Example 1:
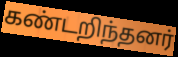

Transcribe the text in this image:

கண்டறிந்தனர்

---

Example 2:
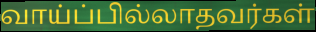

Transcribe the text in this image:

வாய்ப்பில்லாதவர்கள்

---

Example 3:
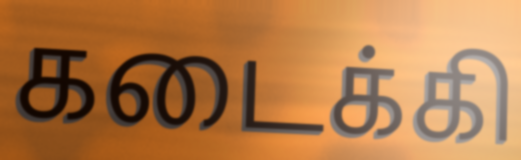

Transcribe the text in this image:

கடைக்கி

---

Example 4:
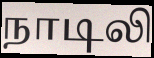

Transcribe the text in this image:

நாடிலி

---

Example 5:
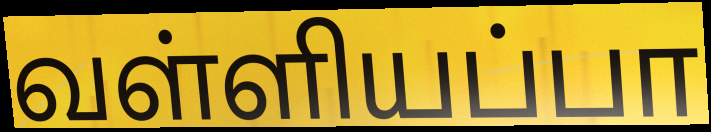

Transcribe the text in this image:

வள்ளியப்பா